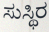
ಸುಸ್ಥಿರ